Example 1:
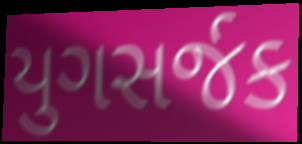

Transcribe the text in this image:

યુગસર્જક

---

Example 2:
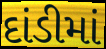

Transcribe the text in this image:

દાંડીમાં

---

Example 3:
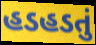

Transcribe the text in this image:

હડહડતું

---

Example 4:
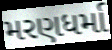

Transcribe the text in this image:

મરણધર્મા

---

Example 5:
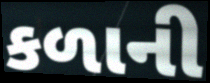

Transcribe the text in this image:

કળાની